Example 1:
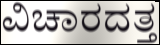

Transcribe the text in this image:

ವಿಚಾರದತ್ತ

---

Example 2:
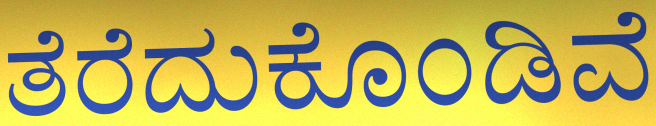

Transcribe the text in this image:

ತೆರೆದುಕೊಂಡಿವೆ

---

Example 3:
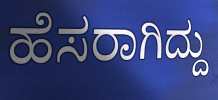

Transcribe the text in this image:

ಹೆಸರಾಗಿದ್ದು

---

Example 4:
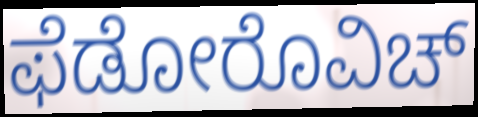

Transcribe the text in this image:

ಫೆಡೋರೊವಿಚ್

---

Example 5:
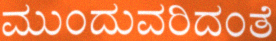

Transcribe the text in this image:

ಮುಂದುವರಿದಂತೆ